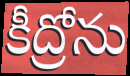
కీద్రోను